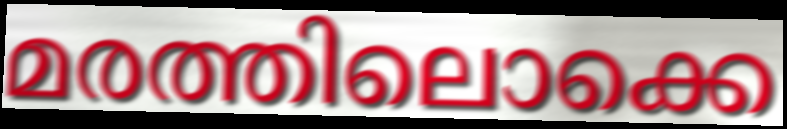
മരത്തിലൊക്കെ